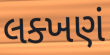
લક્ખણં